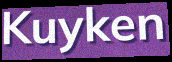
Kuyken